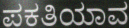
ಪಕತಿಯಾವ